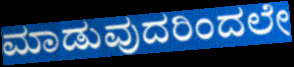
ಮಾಡುವುದರಿಂದಲೇ